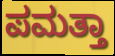
ಪಮತ್ತಾ